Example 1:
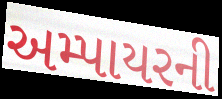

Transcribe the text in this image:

અમ્પાયરની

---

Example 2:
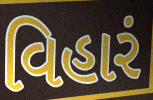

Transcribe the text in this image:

વિહારં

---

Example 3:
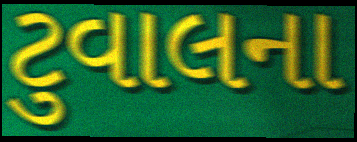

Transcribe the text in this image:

ટુવાલના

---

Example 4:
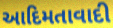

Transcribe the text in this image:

આદિમતાવાદી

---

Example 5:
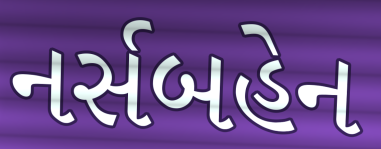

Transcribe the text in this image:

નર્સબહેન